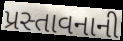
પ્રસ્તાવનાની